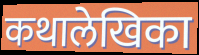
कथालेखिका